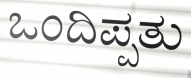
ಒಂದಿಪ್ಪತು